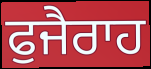
ਫੁਜੈਰਾਹ